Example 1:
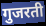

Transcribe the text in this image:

गुजरती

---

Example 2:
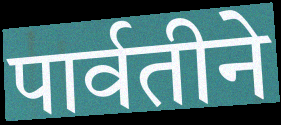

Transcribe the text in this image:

पार्वतीने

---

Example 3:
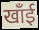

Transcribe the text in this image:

खाँई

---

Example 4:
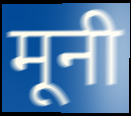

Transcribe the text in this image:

मूनी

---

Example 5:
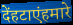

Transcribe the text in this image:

देंहटाएंहमारे